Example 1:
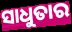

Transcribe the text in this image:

ସାଧୁତାର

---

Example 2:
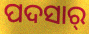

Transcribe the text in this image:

ପଦସାର୍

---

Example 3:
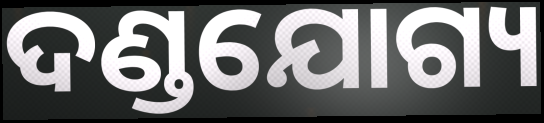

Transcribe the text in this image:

ଦଣ୍ଡଯୋଗ୍ୟ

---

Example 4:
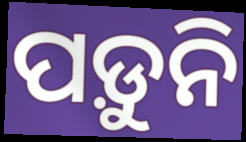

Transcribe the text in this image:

ପଡ଼ୁନି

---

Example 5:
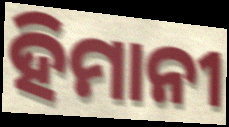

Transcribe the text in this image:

ହିମାନୀ